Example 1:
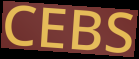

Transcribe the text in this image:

CEBS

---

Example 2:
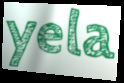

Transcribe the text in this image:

yela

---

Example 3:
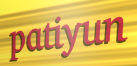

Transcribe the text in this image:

patiyun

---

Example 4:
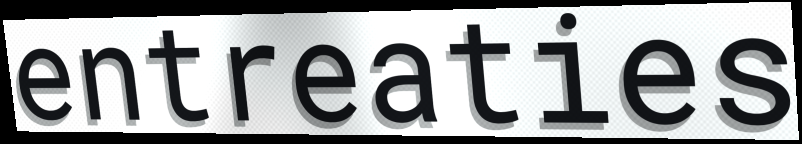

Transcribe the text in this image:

entreaties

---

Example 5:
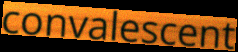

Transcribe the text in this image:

convalescent